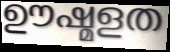
ഊഷ്മളത